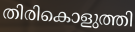
തിരികൊളുത്തി